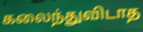
கலைந்துவிடாத